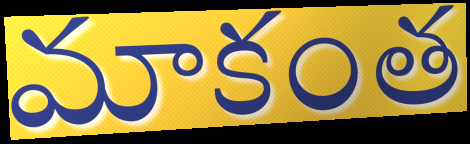
మాకంత